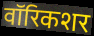
वॉरिकशर